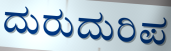
ದುರುದುರಿಪ